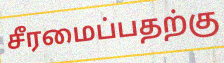
சீரமைப்பதற்கு